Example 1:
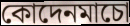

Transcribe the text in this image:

কোদেনমাচো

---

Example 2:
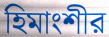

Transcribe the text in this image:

হিমাংশীর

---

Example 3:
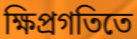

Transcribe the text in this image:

ক্ষিপ্রগতিতে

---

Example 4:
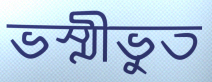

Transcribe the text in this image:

ভস্মীভুত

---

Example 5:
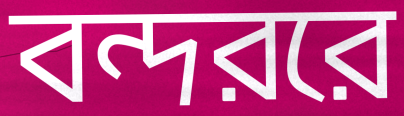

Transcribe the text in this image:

বন্দররে